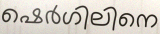
ഷെർഗിലിനെ